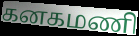
கனகமணி